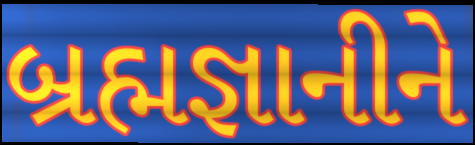
બ્રહ્મજ્ઞાનીને